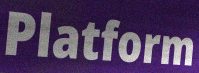
Platform